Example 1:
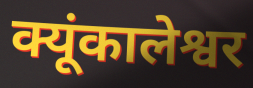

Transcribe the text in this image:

क्यूंकालेश्वर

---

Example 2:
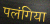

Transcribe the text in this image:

पलंगिया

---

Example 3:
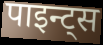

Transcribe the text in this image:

पाइन्ट्स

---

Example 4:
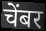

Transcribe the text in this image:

चेंबर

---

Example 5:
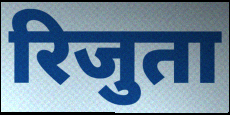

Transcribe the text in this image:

रिजुता